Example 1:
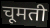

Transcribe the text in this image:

चूमती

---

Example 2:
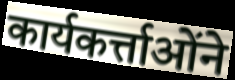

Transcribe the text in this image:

कार्यकर्त्ताओंने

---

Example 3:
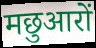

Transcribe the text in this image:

मछुआरों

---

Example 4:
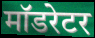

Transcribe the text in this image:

मॉडरेटर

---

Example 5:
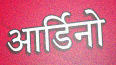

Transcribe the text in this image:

आर्डिनो